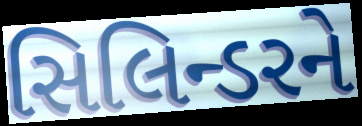
સિલિન્ડરને